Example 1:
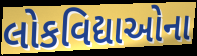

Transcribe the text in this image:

લોકવિદ્યાઓના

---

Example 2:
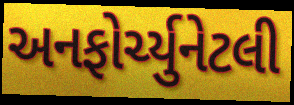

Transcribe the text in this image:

અનફોર્ચ્યુનેટલી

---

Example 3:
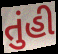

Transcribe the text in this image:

તુંહી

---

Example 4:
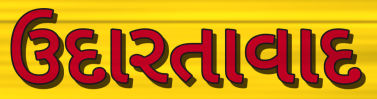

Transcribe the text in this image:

ઉદારતાવાદ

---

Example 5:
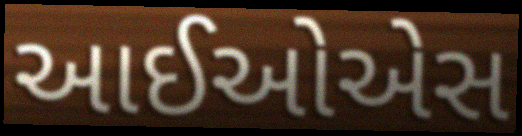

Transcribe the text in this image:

આઈઓએસ